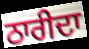
ਠਾਰੀਦਾ